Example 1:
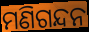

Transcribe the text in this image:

ମଣିଗନ୍ଦନ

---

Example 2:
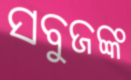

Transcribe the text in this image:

ସବୁଜଙ୍କ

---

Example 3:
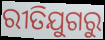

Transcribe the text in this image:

ରୀତିଯୁଗରୁ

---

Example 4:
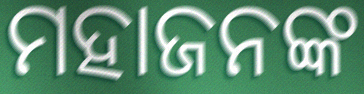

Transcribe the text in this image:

ମହାଜନଙ୍କ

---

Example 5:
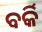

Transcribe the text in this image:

ବର୍କି